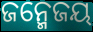
ଜନ୍ମେଜୟ